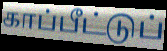
காப்பீட்டுப்